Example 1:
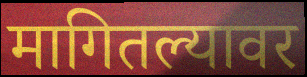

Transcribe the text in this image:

मागितल्यावर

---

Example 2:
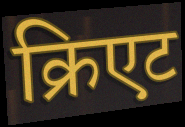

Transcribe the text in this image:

क्रिएट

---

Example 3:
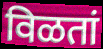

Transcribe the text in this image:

विळतां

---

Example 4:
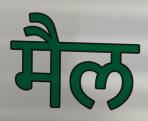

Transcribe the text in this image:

मैल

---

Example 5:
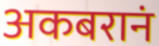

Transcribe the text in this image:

अकबरानं